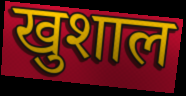
खुशाल